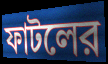
ফাটলের